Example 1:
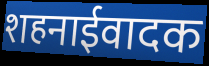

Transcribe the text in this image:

शहनाईवादक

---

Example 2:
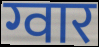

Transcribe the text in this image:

ग्वार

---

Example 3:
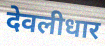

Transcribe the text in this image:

देवलीधार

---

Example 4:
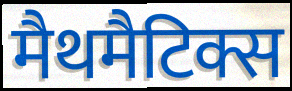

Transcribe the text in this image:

मैथमैटिक्स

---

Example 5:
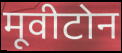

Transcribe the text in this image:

मूवीटोन